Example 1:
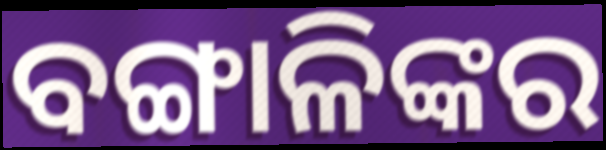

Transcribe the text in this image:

ବଙ୍ଗାଳିଙ୍କର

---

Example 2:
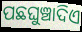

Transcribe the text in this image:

ପଛଘୁଞ୍ଚାଦିଏ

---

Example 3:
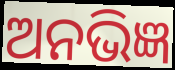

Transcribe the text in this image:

ଅନଭିଜ୍ଞ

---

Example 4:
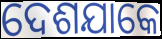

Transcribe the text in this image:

ଦେଶଯାକେ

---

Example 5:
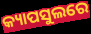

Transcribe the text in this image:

କ୍ୟାପସୁଲରେ